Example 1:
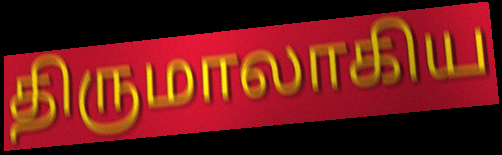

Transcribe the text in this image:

திருமாலாகிய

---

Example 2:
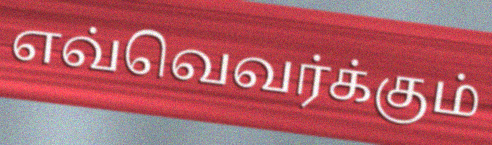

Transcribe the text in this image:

எவ்வெவர்க்கும்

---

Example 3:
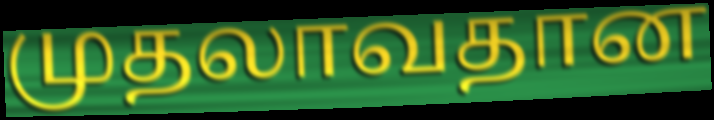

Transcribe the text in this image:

முதலாவதான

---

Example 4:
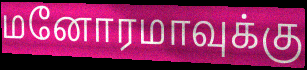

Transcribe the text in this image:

மனோரமாவுக்கு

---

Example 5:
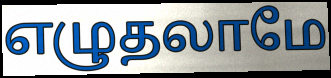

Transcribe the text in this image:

எழுதலாமே